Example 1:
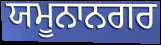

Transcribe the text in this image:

ਯਮੂਨਾਨਗਰ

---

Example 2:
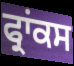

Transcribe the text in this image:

ਫ੍ਰਾਂਕਸ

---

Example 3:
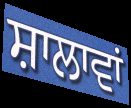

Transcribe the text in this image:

ਸ਼ਾਲਾਵਾਂ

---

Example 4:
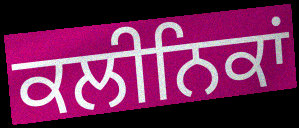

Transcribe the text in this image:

ਕਲੀਨਿਕਾਂ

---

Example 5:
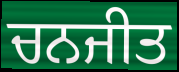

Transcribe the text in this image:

ਚਨਜੀਤ